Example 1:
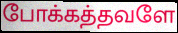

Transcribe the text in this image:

போக்கத்தவளே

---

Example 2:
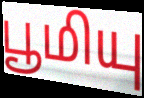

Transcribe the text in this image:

பூமியு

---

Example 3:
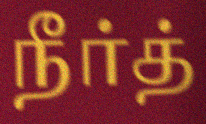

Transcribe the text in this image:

நீர்த்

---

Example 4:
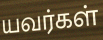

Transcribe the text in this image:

யவர்கள்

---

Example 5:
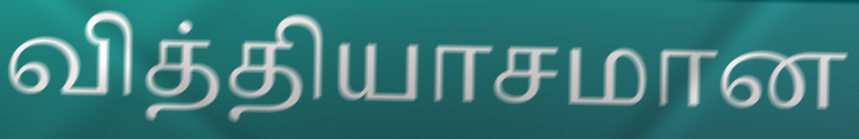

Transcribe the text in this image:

வித்தியாசமான